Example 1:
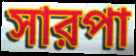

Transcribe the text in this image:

সারপা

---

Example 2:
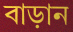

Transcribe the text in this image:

বাড়ান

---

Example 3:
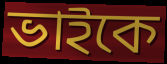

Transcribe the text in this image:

ভাইকে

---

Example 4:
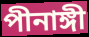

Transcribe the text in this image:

পীনাঙ্গী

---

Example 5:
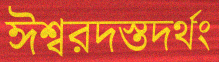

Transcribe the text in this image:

ঈশ্বরদস্তদর্থং